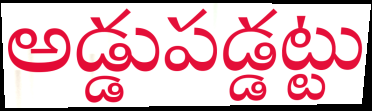
అడ్డుపడ్డట్టు